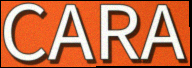
CARA